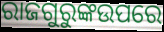
ରାଜଗୁରୁଙ୍କଉପରେ